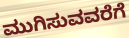
ಮುಗಿಸುವವರೆಗೆ